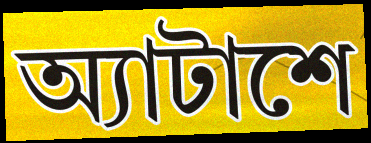
অ্যাটাশে